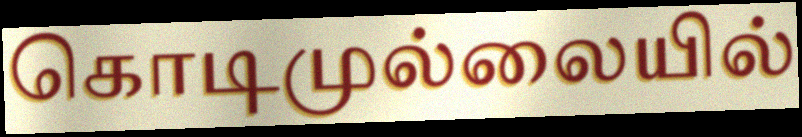
கொடிமுல்லையில்